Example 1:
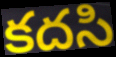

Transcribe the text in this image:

కదసి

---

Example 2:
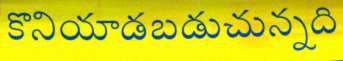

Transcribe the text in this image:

కొనియాడబడుచున్నది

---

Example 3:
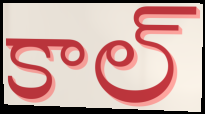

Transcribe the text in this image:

కాల్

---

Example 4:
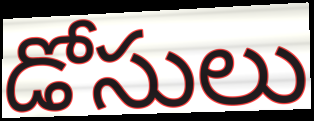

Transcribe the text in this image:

డోసులు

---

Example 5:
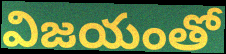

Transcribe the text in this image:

విజయంతో